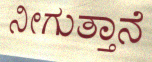
ನೀಗುತ್ತಾನೆ